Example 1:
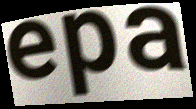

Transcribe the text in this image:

epa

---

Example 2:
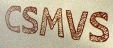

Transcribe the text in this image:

CSMVS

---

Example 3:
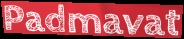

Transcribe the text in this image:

Padmavat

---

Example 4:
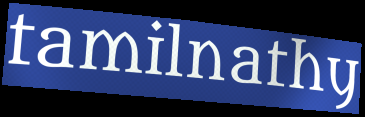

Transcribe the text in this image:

tamilnathy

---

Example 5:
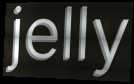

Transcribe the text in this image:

jelly